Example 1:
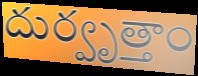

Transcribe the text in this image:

దుర్వృత్తాం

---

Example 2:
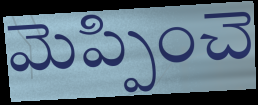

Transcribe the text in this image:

మెప్పించె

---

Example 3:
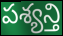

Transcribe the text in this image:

పశ్యన్తి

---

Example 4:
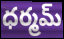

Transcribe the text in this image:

ధర్మమ్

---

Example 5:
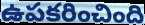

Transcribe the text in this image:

ఉపకరించింది